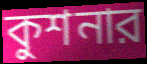
কুশনার